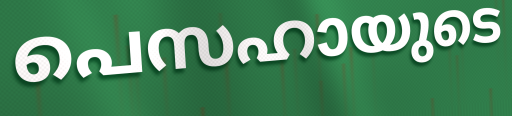
പെസഹായുടെ